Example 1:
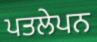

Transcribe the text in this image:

ਪਤਲੇਪਨ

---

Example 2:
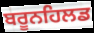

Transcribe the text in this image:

ਬਰੂਨਹਿਲਡ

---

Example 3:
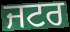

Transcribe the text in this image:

ਜਟਰ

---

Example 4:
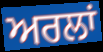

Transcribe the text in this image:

ਅਰਲਾਂ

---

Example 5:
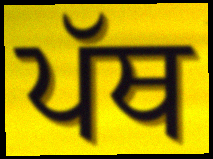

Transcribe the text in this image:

ਪੱਥ